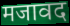
मजावद